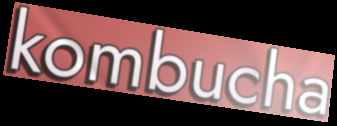
kombucha